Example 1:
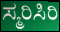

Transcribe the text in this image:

ಸ್ಮರಿಸಿರಿ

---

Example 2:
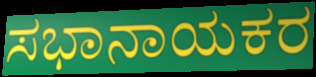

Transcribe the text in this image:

ಸಭಾನಾಯಕರ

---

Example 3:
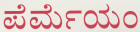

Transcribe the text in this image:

ಪೆರ್ಮೆಯಂ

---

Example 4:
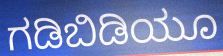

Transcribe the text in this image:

ಗಡಿಬಿಡಿಯೂ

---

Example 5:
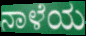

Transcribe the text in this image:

ನಾಳೆಯ